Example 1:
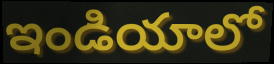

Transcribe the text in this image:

ఇండియాలో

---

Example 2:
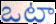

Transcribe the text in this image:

ఒటా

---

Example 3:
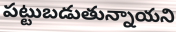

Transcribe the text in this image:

పట్టుబడుతున్నాయని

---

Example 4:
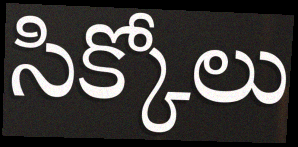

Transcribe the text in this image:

సిక్కోలు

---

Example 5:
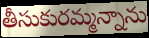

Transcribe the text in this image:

తీసుకురమ్మన్నాను